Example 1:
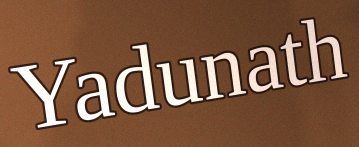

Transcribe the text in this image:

Yadunath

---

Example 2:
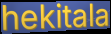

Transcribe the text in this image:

hekitala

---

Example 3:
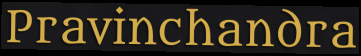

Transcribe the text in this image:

Pravinchandra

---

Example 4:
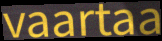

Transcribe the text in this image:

vaartaa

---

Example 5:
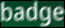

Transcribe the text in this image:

badge